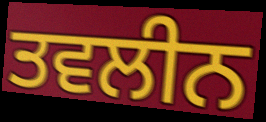
ਤਵਲੀਨ